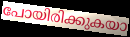
പോയിരിക്കുകയാ